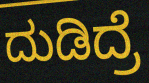
ದುಡಿದ್ರೆ